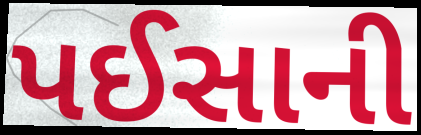
પઈસાની